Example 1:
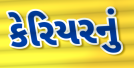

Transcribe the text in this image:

કેરિયરનું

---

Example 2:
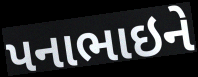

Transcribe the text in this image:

પનાભાઇને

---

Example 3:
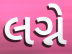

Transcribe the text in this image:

લગ્ને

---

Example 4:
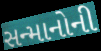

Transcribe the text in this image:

સન્માનોની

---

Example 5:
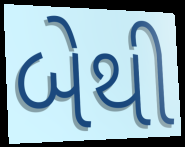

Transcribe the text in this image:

બેથી